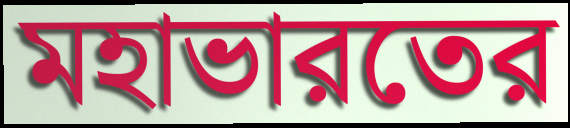
মহাভারতের